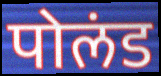
पोलंड